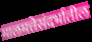
मालमत्तेसंदर्भातील